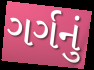
ગર્ગનું